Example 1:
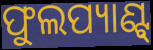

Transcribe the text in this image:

ଫୁଲପ୍ୟାଣ୍ଟ୍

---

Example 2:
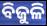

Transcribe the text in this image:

ବିଜୁଳି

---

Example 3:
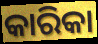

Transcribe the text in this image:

କାରିକା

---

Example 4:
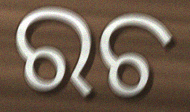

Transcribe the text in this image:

ରଚ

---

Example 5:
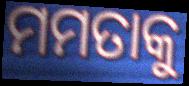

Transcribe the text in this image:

ମମତାକୁ